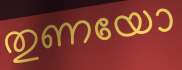
തുണയോ